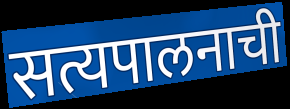
सत्यपालनाची